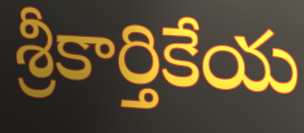
శ్రీకార్తికేయ